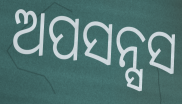
ଅପସନ୍ସସ